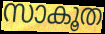
സാകൂത